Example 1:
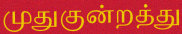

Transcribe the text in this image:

முதுகுன்றத்து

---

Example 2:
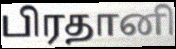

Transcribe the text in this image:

பிரதானி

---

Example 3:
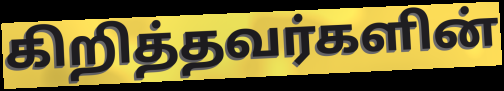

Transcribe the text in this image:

கிறித்தவர்களின்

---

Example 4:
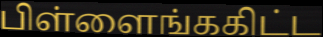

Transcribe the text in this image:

பிள்ளைங்ககிட்ட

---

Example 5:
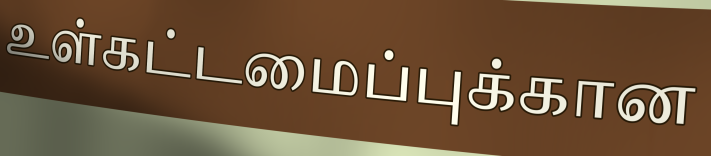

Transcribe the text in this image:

உள்கட்டமைப்புக்கான